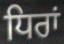
ਧਿਰਾਂ